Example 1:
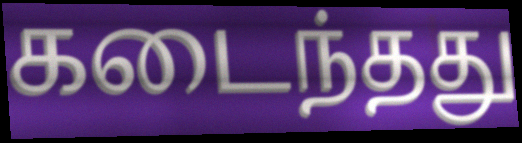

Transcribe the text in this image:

கடைந்தது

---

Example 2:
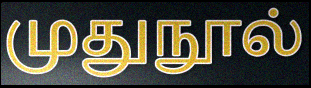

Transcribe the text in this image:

முதுநூல்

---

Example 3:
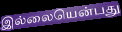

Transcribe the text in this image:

இல்லையென்பது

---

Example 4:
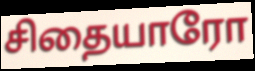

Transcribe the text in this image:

சிதையாரோ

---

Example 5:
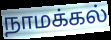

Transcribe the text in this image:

நாமக்கல்